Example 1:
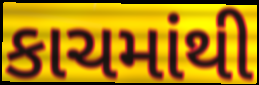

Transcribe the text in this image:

કાચમાંથી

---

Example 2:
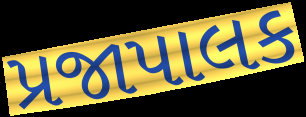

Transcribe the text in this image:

પ્રજાપાલક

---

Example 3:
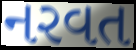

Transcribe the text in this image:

નરવત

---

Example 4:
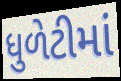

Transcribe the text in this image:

ધુળેટીમાં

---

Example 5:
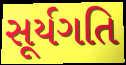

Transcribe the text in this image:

સૂર્યગતિ